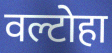
वल्टोहा